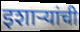
इशाऱ्यांची